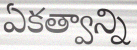
ఏకత్వాన్ని